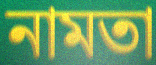
নামতা